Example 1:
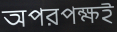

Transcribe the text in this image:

অপরপক্ষই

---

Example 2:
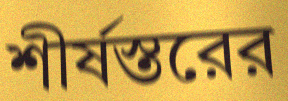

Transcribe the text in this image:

শীর্ষস্তরের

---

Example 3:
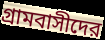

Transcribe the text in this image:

গ্রামবাসীদের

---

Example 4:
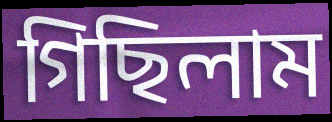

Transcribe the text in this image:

গিছিলাম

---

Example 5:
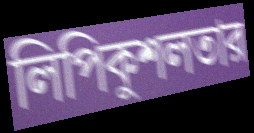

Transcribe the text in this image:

লিপিকুশলতার